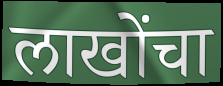
लाखोंचा